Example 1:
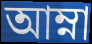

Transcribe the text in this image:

আম্না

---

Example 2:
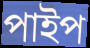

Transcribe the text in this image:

পাইপ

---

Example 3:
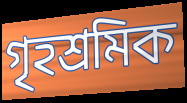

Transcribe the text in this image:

গৃহশ্রমিক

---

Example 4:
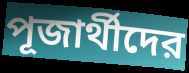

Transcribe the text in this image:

পূজার্থীদের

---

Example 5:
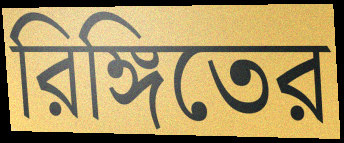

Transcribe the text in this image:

রিঙ্গিতের